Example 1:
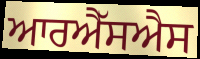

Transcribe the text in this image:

ਆਰਐੱਸਐਸ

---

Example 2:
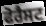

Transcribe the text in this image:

ਫੋਰੈਸਟ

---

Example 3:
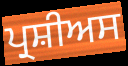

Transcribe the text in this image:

ਪ੍ਰਸ਼ੀਅਸ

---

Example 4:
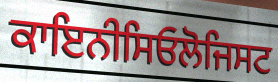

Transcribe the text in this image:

ਕਾਇਨੀਸਿਓਲੋਜਿਸਟ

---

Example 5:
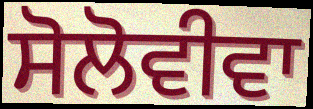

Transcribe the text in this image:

ਸੋਲੋਵੀਵਾ